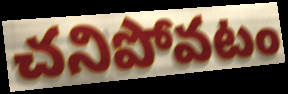
చనిపోవటం